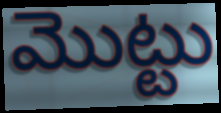
మొట్టు